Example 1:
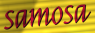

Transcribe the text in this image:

samosa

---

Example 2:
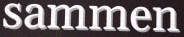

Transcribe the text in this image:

sammen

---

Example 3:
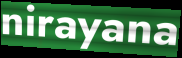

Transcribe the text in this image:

nirayana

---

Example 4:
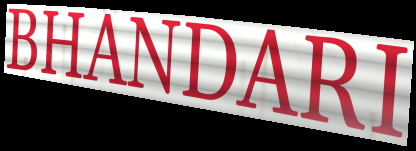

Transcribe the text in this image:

BHANDARI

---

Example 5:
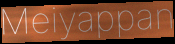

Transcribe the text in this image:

Meiyappan